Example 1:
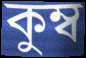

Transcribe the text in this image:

কুম্ব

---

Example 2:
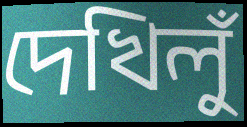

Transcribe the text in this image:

দেখিলুঁ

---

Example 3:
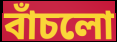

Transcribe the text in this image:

বাঁচলো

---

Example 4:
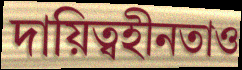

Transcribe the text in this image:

দায়িত্বহীনতাও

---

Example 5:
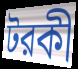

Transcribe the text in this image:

টরকী